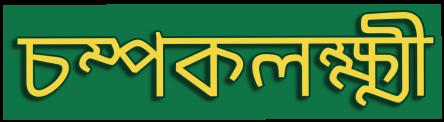
চম্পকলক্ষ্মী